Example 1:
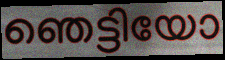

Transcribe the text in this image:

ഞെട്ടിയോ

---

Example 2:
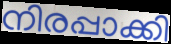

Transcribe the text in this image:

നിരപ്പാക്കി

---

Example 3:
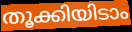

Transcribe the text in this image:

തൂക്കിയിടാം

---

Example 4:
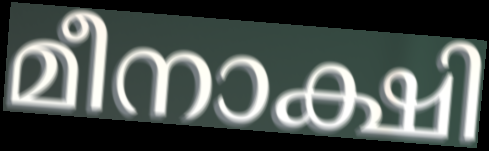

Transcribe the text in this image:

മീനാക്ഷി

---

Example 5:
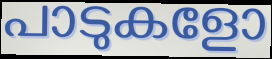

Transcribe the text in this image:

പാടുകളോ